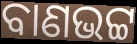
ବାଣଭଟ୍ଟ